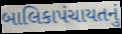
બાલિકાપંચાયતનું